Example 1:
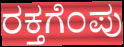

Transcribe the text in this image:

ರಕ್ತಗೆಂಪು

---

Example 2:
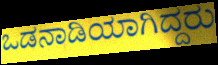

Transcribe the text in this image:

ಒಡನಾಡಿಯಾಗಿದ್ದರು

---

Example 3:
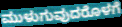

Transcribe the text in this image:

ಮುಳುಗುವುದರೊಳಗೆ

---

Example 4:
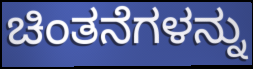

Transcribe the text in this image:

ಚಿಂತನೆಗಳನ್ನು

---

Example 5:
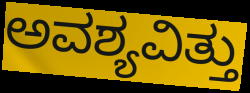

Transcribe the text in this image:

ಅವಶ್ಯವಿತ್ತು